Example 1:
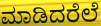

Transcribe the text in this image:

ಮಾಡಿದರೆಲೆ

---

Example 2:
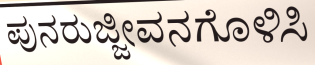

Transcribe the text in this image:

ಪುನರುಜ್ಜೀವನಗೊಳಿಸಿ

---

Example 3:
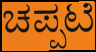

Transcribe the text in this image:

ಚಪ್ಪಟೆ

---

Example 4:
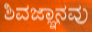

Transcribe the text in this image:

ಶಿವಜ್ಞಾನವು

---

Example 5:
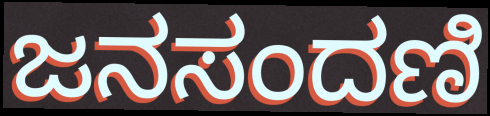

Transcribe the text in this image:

ಜನಸಂದಣಿ